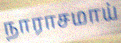
நாராசமாய்